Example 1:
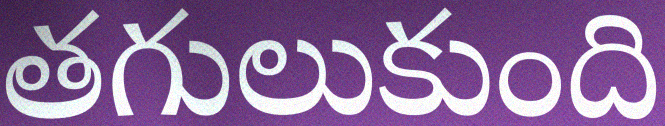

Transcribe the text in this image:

తగులుకుంది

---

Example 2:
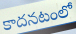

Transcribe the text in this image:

కాదనటంలో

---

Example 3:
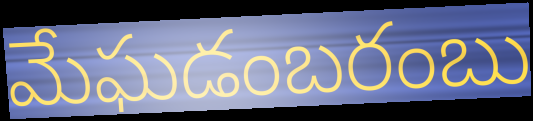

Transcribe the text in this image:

మేఘడంబరంబు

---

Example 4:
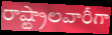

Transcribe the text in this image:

రాష్ట్రాలవారీగా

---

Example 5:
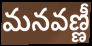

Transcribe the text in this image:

మనవణ్ణీ